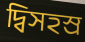
দ্বিসহস্র